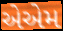
એએમ